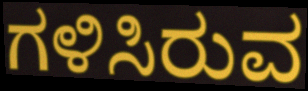
ಗಳಿಸಿರುವ